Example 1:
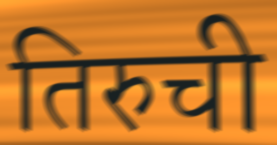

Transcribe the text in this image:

तिरुची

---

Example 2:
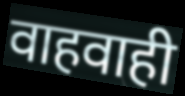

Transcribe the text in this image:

वाहवाही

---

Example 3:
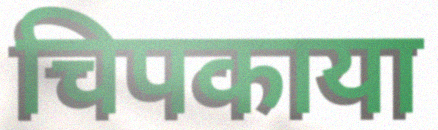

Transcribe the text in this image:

चिपकाया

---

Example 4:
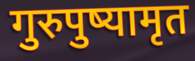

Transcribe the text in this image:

गुरुपुष्यामृत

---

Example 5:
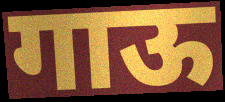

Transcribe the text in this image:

गाऊ